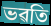
ভৱতি